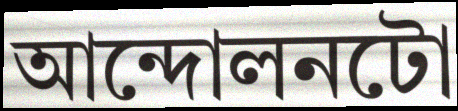
আন্দোলনটো